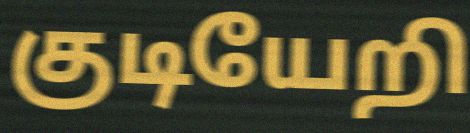
குடியேறி